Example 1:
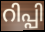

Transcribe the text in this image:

റിപ്പി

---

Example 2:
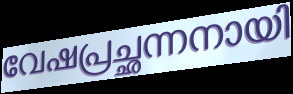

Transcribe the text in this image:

വേഷപ്രച്ഛന്നനായി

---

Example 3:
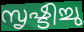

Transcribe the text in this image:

സൃഷ്ടിച്ചു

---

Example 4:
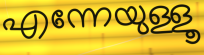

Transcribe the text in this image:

എന്നേയുള്ളൂ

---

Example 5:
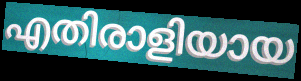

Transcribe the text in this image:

എതിരാളിയായ